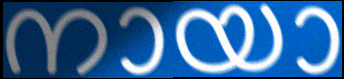
നായാ